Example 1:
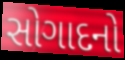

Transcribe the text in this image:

સોગાદનો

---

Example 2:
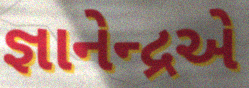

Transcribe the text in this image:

જ્ઞાનેન્દ્રએ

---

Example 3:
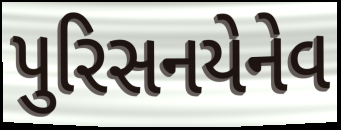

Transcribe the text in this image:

પુરિસનયેનેવ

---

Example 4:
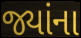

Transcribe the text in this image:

જ્યાંના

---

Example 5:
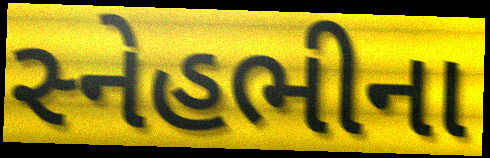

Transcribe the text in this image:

સ્નેહભીના